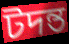
টদন্ত